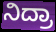
ನಿದ್ರಾ